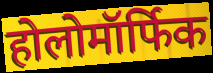
होलोमॉर्फिक